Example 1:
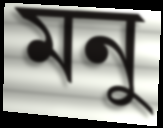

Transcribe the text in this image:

মনু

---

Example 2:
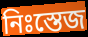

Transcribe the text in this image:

নিঃস্তেজ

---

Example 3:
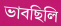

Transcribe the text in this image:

ভাবছিলি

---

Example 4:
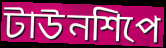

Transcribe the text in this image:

টাউনশিপে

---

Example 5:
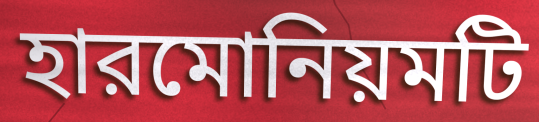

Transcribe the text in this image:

হারমোনিয়মটি